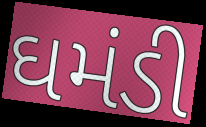
ઘમંડી